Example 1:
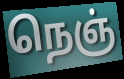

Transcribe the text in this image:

நெஞ்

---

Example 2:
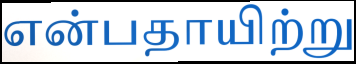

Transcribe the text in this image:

என்பதாயிற்று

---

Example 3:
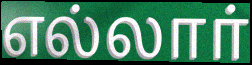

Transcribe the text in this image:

எல்லார்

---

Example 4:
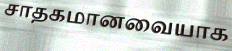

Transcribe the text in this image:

சாதகமானவையாக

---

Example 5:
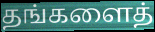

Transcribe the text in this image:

தங்களைத்